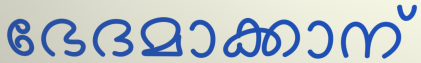
ഭേദമാക്കാന്